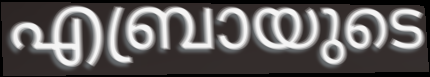
എബ്രായുടെ